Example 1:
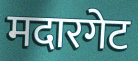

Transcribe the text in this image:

मदारगेट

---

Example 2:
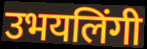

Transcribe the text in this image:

उभयलिंगी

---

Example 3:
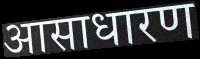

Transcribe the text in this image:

आसाधारण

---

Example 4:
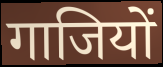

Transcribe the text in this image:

गाजियों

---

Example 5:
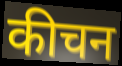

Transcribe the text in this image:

कीचन